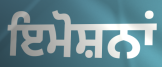
ਇਮੋਸ਼ਨਾਂ